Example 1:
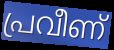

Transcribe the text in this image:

പ്രവീണ്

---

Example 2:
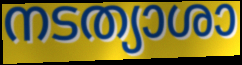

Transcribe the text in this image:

നടത്യാശാ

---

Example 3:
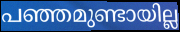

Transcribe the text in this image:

പഞ്ഞമുണ്ടായില്ല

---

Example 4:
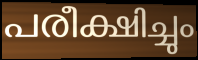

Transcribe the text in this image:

പരീക്ഷിച്ചും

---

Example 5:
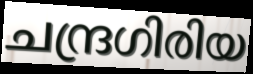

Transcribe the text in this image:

ചന്ദ്രഗിരിയ